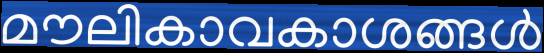
മൗലികാവകാശങ്ങൾ